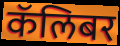
कॅलिबर